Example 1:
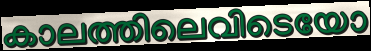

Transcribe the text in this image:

കാലത്തിലെവിടെയോ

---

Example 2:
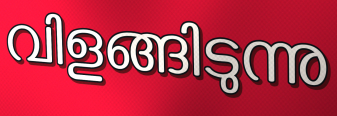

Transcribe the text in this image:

വിളങ്ങിടുന്നു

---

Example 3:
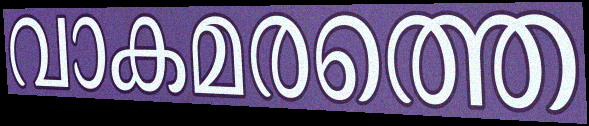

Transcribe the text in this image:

വാകമരത്തെ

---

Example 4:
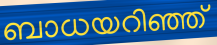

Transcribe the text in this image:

ബാധയറിഞ്ഞ്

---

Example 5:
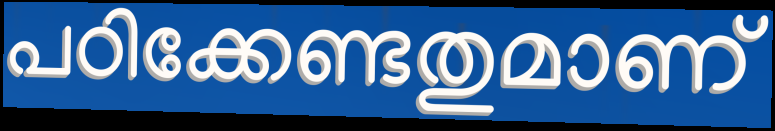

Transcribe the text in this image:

പഠിക്കേണ്ടതുമാണ്